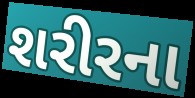
શરીરના